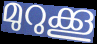
മുറുക്കൂ